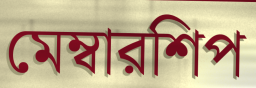
মেম্বারশিপ